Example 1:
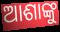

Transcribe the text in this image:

ଆଶାଙ୍କୁ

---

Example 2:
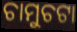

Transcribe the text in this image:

ଚାମୁଚଟା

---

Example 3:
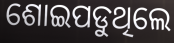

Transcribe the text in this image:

ଶୋଇପଡୁଥିଲେ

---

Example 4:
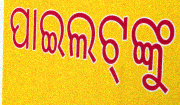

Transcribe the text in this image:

ପାଇଲଟ୍‌ଙ୍କୁ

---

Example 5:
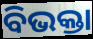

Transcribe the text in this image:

ବିଭକ୍ତା